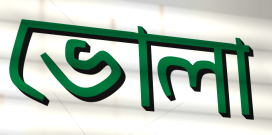
ভোলা